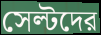
সেল্টদের